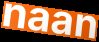
naan